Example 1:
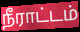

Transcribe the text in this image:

நீராட்டம்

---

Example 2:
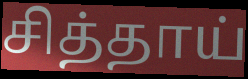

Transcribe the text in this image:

சித்தாய்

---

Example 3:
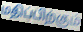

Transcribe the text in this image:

மதிப்பிற்கும்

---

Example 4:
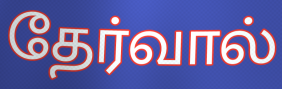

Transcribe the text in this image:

தேர்வால்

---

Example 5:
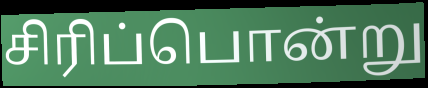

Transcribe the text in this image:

சிரிப்பொன்று